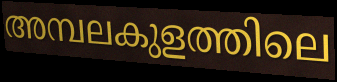
അമ്പലകുളത്തിലെ